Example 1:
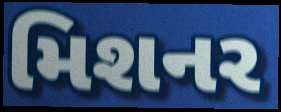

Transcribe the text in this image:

મિશનર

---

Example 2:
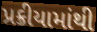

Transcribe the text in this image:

પ્રક્રીયામાંથી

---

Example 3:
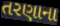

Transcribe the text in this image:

તરણાના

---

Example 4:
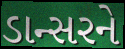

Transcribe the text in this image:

ડાન્સરને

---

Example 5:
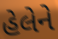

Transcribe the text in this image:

હેલેને